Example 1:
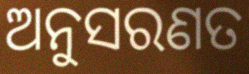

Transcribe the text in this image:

ଅନୁସରଣତ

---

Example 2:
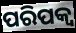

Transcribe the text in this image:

ପରିପକ୍ଵ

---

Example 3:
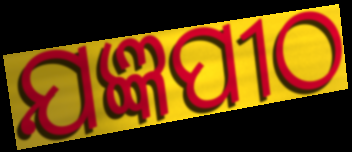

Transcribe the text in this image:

ଯଜ୍ଞପୀଠ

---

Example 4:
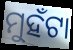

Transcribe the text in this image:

ମୁହଁଟା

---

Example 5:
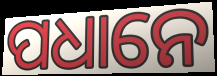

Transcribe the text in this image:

ପଧାନେ